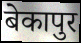
बेकापुर